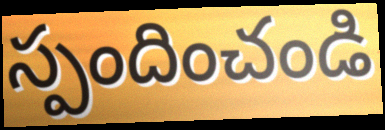
స్పందించండి